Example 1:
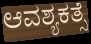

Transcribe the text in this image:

ಆವಶ್ಯಕತ್ಸೆ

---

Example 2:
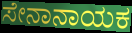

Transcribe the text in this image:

ಸೇನಾನಾಯಕ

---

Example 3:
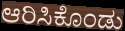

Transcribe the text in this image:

ಆರಿಸಿಕೊಂಡು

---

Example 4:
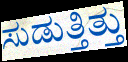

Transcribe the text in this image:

ಸುಡುತ್ತಿತ್ತು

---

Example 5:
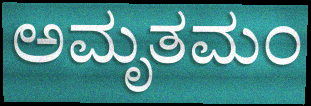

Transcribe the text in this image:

ಅಮೃತಮಂ